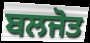
ਬਲਜੋਤ